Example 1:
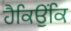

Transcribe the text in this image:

ਹੈਕਿਉਂਕਿ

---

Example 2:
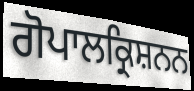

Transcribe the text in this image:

ਗੋਪਾਲਕ੍ਰਿਸ਼ਨਨ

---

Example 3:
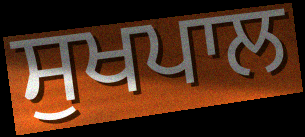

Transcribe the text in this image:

ਸੁਖਪਾਲ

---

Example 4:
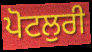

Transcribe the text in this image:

ਪੋਟਲੁਰੀ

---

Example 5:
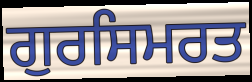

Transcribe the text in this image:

ਗੁਰਸਿਮਰਤ